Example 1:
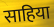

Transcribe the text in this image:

साहिया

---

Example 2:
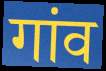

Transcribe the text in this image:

गांव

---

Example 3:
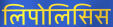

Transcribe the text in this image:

लिपोलिसिस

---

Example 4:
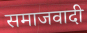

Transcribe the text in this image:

समाजवादी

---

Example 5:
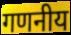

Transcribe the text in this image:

गणनीय